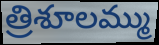
త్రిశూలమ్ము